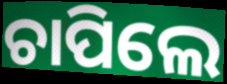
ଚାପିଲେ